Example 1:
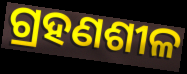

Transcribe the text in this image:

ଗ୍ରହଣଶୀଳ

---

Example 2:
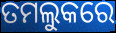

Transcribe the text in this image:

ତମଲୁକରେ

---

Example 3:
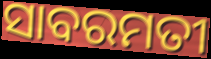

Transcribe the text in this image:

ସାବରମତୀ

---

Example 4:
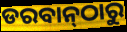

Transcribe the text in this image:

ଡରବାନ୍‌ଠାରୁ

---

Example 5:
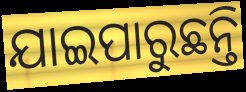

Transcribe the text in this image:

ଯାଇପାରୁଛନ୍ତି